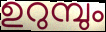
ഉറുമ്പും